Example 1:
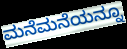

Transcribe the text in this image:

ಮನೆಮನೆಯನ್ನೂ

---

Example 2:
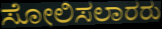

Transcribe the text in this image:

ಸೋಲಿಸಲಾರರು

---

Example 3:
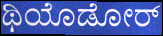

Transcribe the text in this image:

ಥಿಯೊಡೋರ್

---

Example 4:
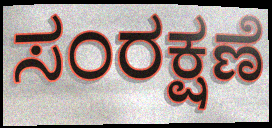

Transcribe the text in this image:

ಸಂರಕ್ಷಣೆ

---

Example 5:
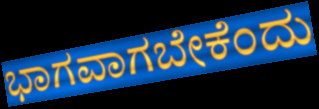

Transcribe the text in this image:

ಭಾಗವಾಗಬೇಕೆಂದು